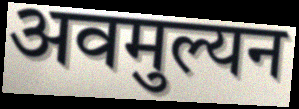
अवमुल्यन